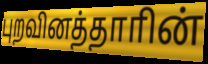
புறவினத்தாரின்